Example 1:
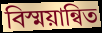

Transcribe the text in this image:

বিস্ময়ান্বিত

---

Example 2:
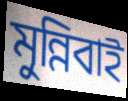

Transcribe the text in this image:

মুন্নিবাই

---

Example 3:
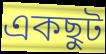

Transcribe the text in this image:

একছুট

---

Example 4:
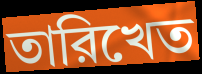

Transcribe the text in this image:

তারিখেত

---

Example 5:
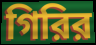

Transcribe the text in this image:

গিরির